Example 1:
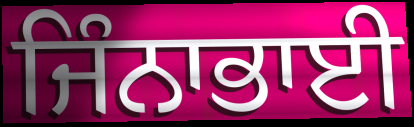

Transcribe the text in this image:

ਜਿੰਨਾਭਾਈ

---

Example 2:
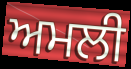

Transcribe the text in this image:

ਅਮਲੀ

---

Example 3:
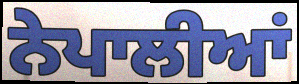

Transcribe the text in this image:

ਨੇਪਾਲੀਆਂ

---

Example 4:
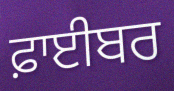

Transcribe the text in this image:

ਫ਼ਾਈਬਰ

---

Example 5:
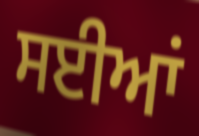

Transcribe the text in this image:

ਸਈਆਂ